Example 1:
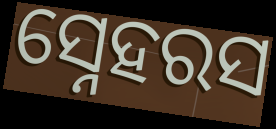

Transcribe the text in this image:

ସ୍ନେହରସ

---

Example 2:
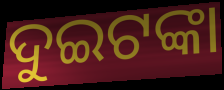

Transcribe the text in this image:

ଦୁଇଟଙ୍କା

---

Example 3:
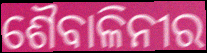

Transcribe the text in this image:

ଶୈବାଳିନୀର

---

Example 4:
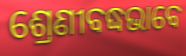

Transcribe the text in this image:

ଶ୍ରେଣୀବଦ୍ଧଭାବେ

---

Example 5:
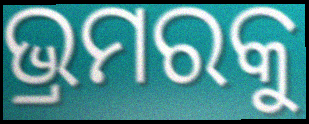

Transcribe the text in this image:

ଭ୍ରମରକୁ